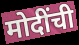
मोदींची